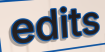
edits